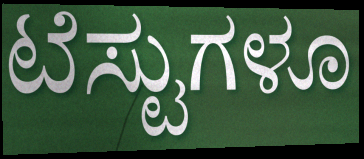
ಟೆಸ್ಟುಗಳೂ